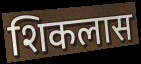
शिकलास